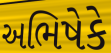
અભિષેકે